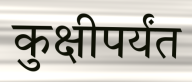
कुक्षीपर्यंत